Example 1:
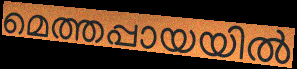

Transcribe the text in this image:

മെത്തപ്പായയിൽ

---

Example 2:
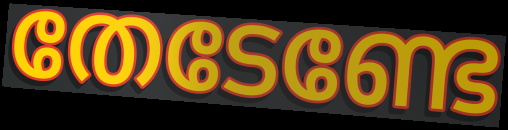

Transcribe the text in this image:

തേടേണ്ടേ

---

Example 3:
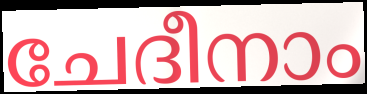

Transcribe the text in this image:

ചേദീനാം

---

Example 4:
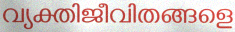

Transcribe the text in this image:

വ്യക്തിജീവിതങ്ങളെ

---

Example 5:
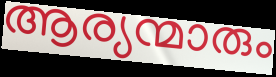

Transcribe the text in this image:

ആര്യന്മാരും